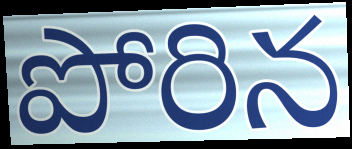
పోరిన